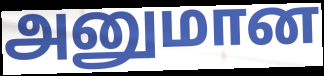
அனுமான